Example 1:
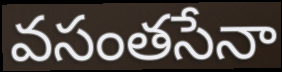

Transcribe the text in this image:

వసంతసేనా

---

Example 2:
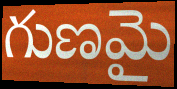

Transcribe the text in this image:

గుణమై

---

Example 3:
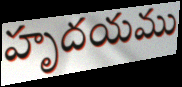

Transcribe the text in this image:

హృదయము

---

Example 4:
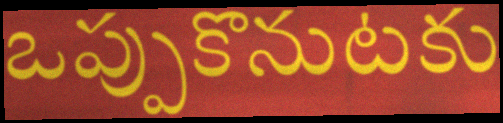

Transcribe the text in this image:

ఒప్పుకొనుటకు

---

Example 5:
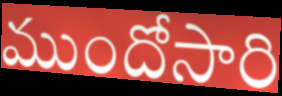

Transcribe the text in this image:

ముందోసారి